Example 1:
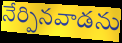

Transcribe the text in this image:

నేర్పినవాడను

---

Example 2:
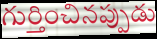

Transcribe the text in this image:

గుర్తించినప్పుడు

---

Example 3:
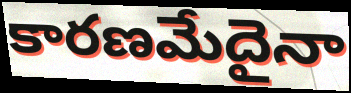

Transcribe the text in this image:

కారణమేదైనా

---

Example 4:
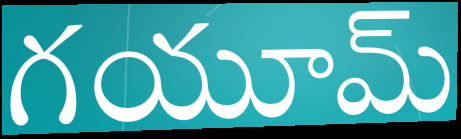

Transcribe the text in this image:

గయూమ్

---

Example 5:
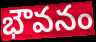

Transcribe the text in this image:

భౌవనం